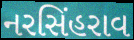
નરસિંહરાવ